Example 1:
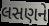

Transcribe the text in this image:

લસણને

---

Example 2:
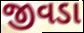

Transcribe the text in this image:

જીવડા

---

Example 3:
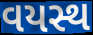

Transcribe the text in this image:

વયસ્થ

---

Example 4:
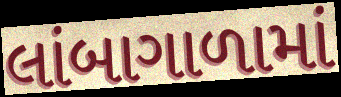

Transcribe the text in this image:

લાંબાગાળામાં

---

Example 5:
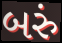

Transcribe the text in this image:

બરું